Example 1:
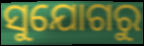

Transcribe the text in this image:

ସୁଯୋଗରୁ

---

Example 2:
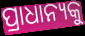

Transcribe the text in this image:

ପ୍ରାଧାନ୍ୟକୁ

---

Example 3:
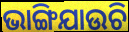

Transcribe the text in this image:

ଭାଙ୍ଗିଯାଉଚି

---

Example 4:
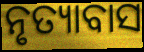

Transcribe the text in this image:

ନୃତ୍ୟାବାସ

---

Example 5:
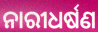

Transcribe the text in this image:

ନାରୀଧର୍ଷଣ